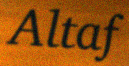
Altaf